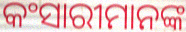
କଂସାରୀମାନଙ୍କ